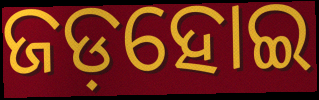
ଜଡ଼ହୋଇ